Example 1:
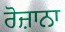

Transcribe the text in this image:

ਰੋਜ਼ਾਨਾ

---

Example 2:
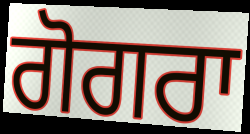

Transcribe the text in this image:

ਗੋਗਰਾ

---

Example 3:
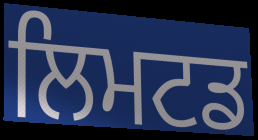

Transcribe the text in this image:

ਲਿਮਟਡ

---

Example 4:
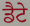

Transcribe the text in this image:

ਡੈਟੇ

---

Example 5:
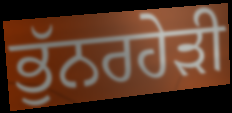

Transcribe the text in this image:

ਭੁੱਨਰਹੇੜੀ